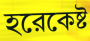
হরেকেষ্ট